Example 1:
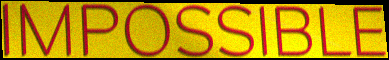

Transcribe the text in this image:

IMPOSSIBLE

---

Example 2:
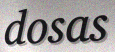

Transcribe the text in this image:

dosas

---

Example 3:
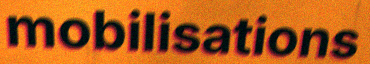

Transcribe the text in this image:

mobilisations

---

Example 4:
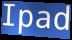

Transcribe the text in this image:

Ipad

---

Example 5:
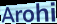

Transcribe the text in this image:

Arohi